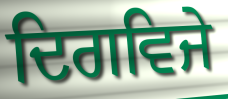
ਦਿਗਵਿਜੇ